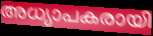
അധ്യാപകരായി